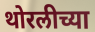
थोरलीच्या